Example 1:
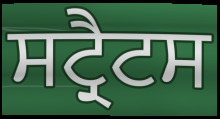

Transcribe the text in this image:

ਸਟ੍ਰੈਟਸ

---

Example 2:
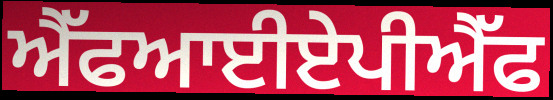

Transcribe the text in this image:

ਐੱਫਆਈਏਪੀਐੱਫ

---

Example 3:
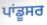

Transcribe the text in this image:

ਪਾਂਡੂਸਰ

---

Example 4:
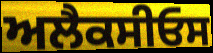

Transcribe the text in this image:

ਅਲੈਕਸੀਓਸ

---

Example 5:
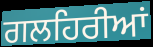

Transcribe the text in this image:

ਗਲਹਿਰੀਆਂ